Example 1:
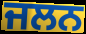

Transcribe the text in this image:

ਜਲਨ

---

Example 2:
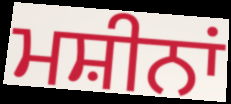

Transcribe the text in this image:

ਮਸ਼ੀਨਾਂ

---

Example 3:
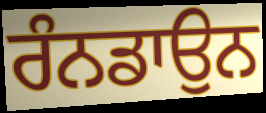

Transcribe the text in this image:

ਰੰਨਡਾਉਨ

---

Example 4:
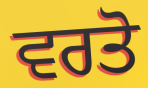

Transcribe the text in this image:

ਵਰਤੋ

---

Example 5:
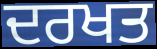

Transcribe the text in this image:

ਦਰਖਤ